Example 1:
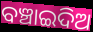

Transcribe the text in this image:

ବଞ୍ଚାଇଦିଅ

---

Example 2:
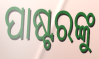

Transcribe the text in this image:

ପାଷ୍ଟରଙ୍କୁ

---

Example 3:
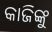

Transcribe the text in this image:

କାଜିଙ୍କୁ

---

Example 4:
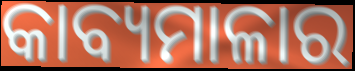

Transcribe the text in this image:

କାବ୍ୟମାଳାର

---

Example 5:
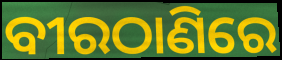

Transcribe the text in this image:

ବୀରଠାଣିରେ